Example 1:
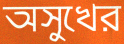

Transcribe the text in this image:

অসুখের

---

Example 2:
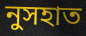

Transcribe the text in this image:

নুসহাত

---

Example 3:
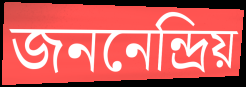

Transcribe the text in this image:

জননেন্দ্রিয়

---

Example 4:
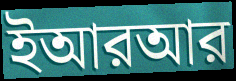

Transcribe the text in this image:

ইআরআর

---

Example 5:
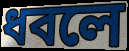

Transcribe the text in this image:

ধবলে